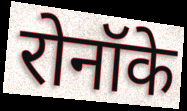
रोनॉके